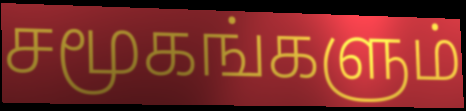
சமூகங்களும்